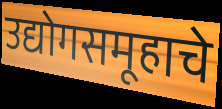
उद्योगसमूहाचे